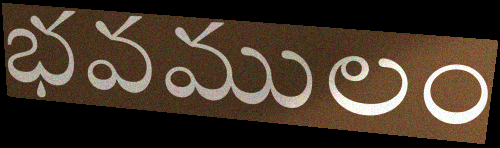
భవములం